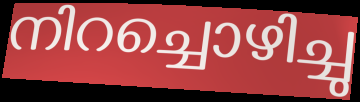
നിറച്ചൊഴിച്ചു